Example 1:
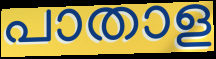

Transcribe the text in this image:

പാതാള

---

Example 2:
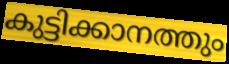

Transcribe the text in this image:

കുട്ടിക്കാനത്തും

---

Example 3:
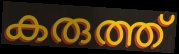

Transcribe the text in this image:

കരുത്ത്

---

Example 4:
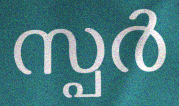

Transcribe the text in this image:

സ്പർ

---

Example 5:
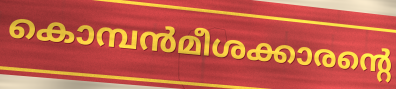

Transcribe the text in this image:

കൊമ്പൻമീശക്കാരന്റെ